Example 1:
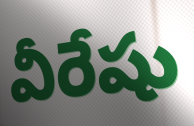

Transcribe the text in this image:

వీరేషు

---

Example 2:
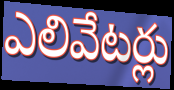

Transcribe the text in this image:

ఎలివేటర్లు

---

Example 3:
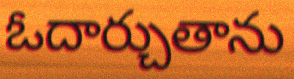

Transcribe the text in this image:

ఓదార్చుతాను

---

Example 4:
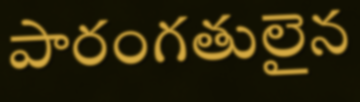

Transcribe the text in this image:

పారంగతులైన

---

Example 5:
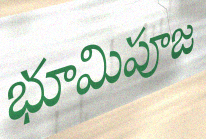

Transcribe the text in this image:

భూమిపూజ